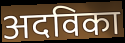
अदविका